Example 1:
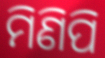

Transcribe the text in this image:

ମିଣିପି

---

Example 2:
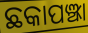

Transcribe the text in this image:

ଛକାପଞ୍ଝା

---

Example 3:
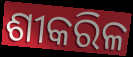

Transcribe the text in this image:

ଶୀକରିଳ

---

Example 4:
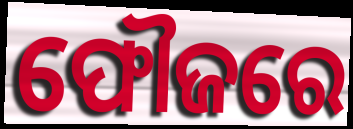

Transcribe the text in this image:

ଫୌଜରେ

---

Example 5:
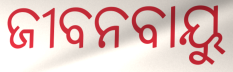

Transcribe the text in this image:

ଜୀବନବାୟୁ